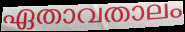
ഏതാവതാലം